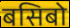
बसिबो